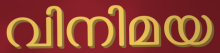
വിനിമയ